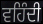
ਵਹਿੰਦੀ